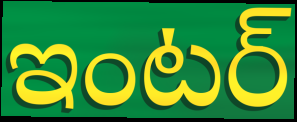
ఇంటర్